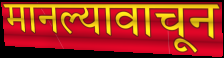
मानल्यावाचून